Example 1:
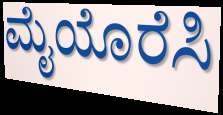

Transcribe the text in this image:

ಮೈಯೊರೆಸಿ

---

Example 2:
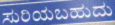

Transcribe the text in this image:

ಸುರಿಯಬಹುದು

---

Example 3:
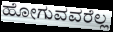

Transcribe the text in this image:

ಹೋಗುವವರೆಲ್ಲ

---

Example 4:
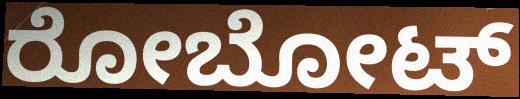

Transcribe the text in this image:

ರೋಬೋಟ್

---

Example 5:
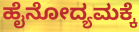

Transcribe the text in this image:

ಹೈನೋದ್ಯಮಕ್ಕೆ